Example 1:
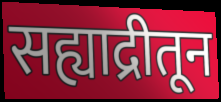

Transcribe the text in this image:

सह्याद्रीतून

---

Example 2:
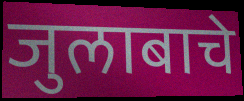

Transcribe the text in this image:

जुलाबाचे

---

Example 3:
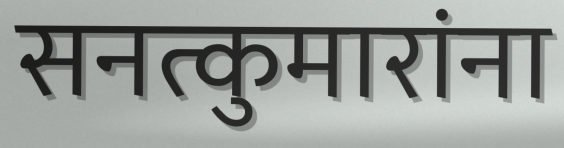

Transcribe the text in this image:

सनत्कुमारांना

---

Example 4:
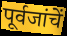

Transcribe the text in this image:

पूर्वजांचें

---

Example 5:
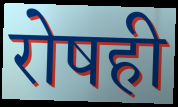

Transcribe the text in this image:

रोषही